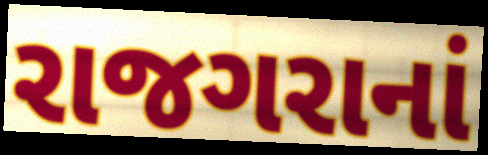
રાજગરાનાં